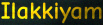
Ilakkiyam